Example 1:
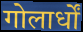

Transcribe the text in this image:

गोलार्धों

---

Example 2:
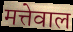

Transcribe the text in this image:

मत्तेवाल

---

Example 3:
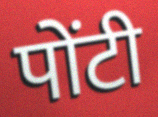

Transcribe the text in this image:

पोंटी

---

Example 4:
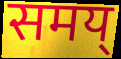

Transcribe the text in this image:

समय्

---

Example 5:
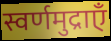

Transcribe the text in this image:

स्वर्णमुद्राएँ